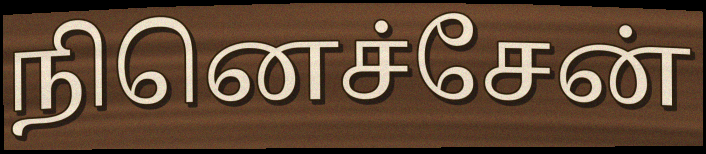
நினெச்சேன்